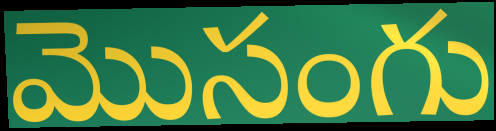
మొసంగు